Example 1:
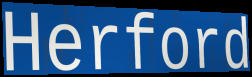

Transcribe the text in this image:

Herford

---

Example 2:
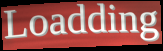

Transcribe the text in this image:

Loadding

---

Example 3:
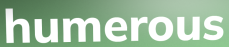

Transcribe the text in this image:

humerous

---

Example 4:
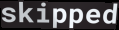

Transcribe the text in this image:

skipped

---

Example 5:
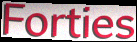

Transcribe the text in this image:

Forties